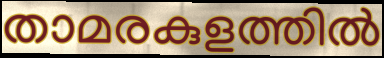
താമരകുളത്തിൽ